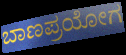
ಬಾಣಪ್ರಯೋಗ